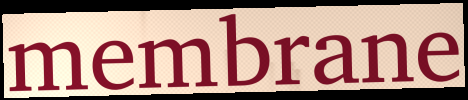
membrane